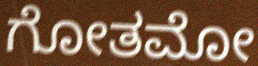
ಗೋತಮೋ